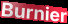
Burnier